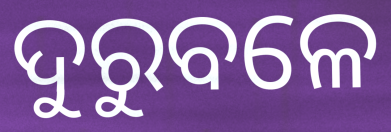
ଦୁରୁବଳେ